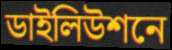
ডাইলিউশনে